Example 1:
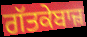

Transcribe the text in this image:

ਗੱਤਕੇਬਾਜ਼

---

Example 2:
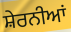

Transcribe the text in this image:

ਸ਼ੇਰਨੀਆਂ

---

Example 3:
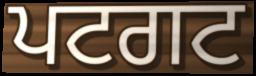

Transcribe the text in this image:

ਪਟਗਟ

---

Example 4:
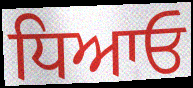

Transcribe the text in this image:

ਧਿਆਓ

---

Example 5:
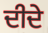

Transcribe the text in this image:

ਦੀਦੇ